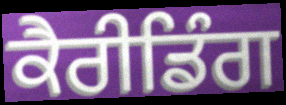
ਕੈਰੀਡਿੰਗ